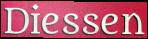
Diessen